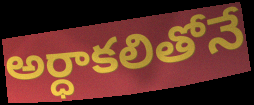
అర్ధాకలితోనే